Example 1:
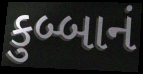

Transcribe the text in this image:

કુબ્બાનં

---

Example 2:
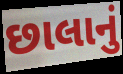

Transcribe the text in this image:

છાલાનું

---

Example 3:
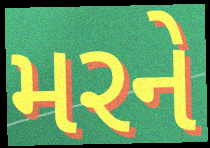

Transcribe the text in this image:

મરને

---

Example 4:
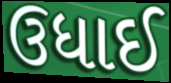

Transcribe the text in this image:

ઉધાઈ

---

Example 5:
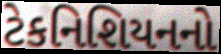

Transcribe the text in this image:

ટેકનિશિયનનો